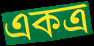
একত্র